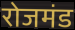
रोजमंड